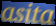
asita